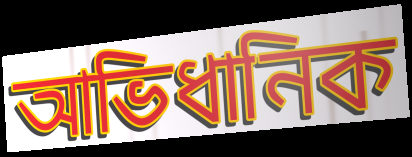
আভিধানিক